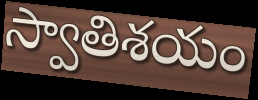
స్వాతిశయం